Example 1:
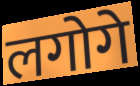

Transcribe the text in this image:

लगोगे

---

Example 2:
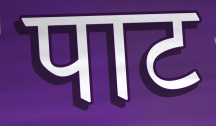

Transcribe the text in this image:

पाट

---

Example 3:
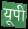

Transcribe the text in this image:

यूपी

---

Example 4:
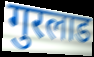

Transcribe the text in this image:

गुरलाड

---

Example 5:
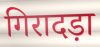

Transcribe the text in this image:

गिरादड़ा